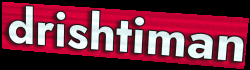
drishtiman